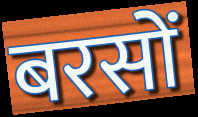
बरसों